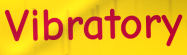
Vibratory